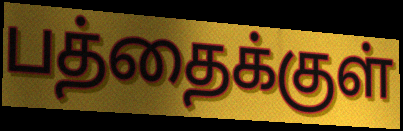
பத்தைக்குள்